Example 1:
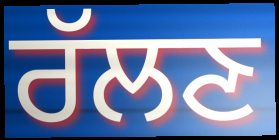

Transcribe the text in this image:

ਰੱਲਣ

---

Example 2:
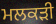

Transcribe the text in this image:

ਮਲਕੜੀ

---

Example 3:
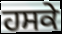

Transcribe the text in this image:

ਹਸਕੇ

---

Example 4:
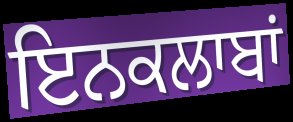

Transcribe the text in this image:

ਇਨਕਲਾਬਾਂ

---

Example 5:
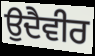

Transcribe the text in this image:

ਉਦੈਵੀਰ